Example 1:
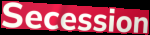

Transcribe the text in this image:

Secession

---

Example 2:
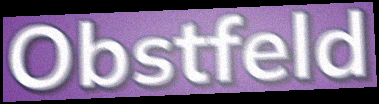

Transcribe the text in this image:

Obstfeld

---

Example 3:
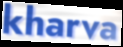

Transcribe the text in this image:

kharva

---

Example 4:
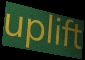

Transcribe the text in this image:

uplift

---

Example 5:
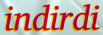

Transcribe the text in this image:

indirdi